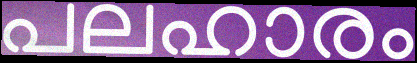
പലഹാരം